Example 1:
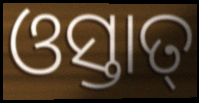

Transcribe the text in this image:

ଓସ୍ତାତ୍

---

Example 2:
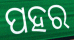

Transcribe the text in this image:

ପହର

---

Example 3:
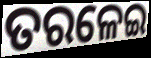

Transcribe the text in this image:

ତରଳେଇ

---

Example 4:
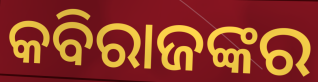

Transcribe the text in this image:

କବିରାଜଙ୍କର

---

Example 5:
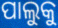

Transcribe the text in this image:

ପାଲୁକୁ